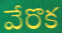
వేరొక